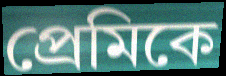
প্ৰেমিকে